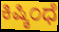
ಕಿಷ್ಕಿಂಧೆ